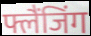
फ्लैंजिंग